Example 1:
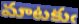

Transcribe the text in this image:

మాటకుఁ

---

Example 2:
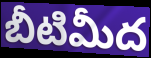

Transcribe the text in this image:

బీటిమీద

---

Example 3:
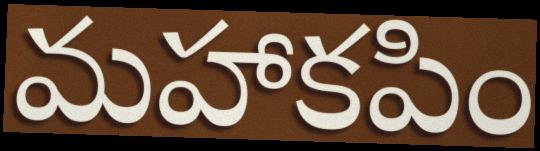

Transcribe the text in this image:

మహాకపిం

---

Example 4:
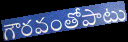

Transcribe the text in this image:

గౌరవంతోపాటు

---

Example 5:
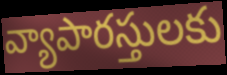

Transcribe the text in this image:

వ్యాపారస్తులకు